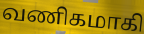
வணிகமாகி